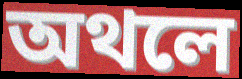
অথলে